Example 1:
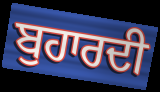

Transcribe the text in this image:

ਬੁਹਾਰਦੀ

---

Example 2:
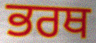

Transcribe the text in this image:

ਭਰਥ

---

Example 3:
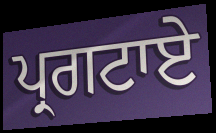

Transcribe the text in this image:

ਪ੍ਰਗਟਾਏ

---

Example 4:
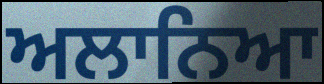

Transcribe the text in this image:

ਅਲਾਨਿਆ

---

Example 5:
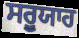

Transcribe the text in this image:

ਸਰੂਯਾਹ